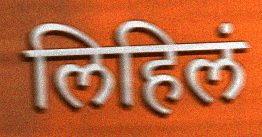
लिहिलं